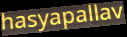
hasyapallav